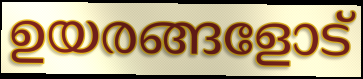
ഉയരങ്ങളോട്